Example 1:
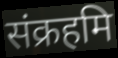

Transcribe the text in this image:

संक्रहमि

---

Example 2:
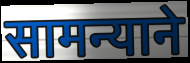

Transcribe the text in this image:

सामन्याने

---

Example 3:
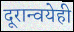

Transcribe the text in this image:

दूरान्वयेही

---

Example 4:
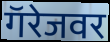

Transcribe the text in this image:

गॅरेजवर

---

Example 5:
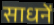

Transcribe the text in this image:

साधनें